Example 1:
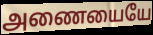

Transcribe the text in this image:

அணையையே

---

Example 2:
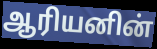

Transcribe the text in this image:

ஆரியனின்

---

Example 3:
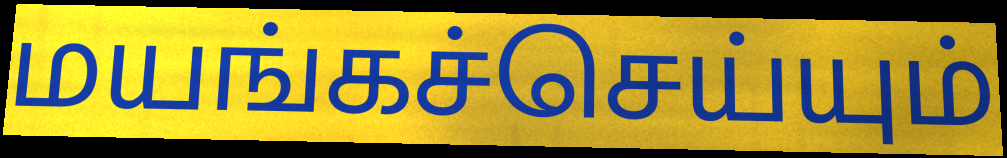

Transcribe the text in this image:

மயங்கச்செய்யும்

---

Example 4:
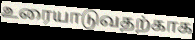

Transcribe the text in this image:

உரையாடுவதற்காக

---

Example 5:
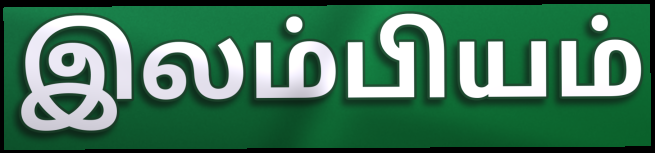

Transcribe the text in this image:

இலம்பியம்